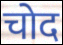
चोद